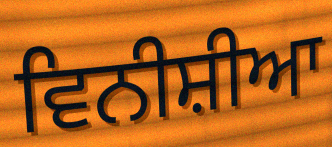
ਵਿਨੀਸ਼ੀਆ